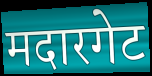
मदारगेट